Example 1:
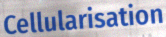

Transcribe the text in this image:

Cellularisation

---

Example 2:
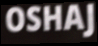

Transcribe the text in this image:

OSHAJ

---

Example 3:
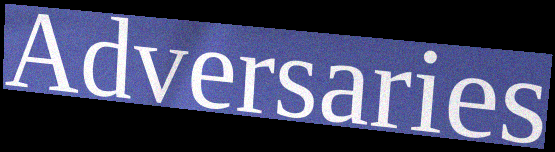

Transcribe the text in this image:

Adversaries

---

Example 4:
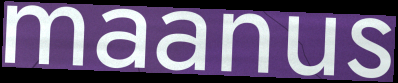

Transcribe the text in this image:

maanus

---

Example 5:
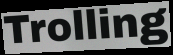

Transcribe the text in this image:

Trolling